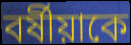
বর্ষীয়াকে